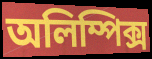
অলিম্পিক্স